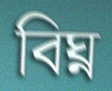
বিঘ্ন